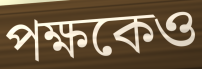
পক্ষকেও